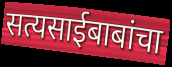
सत्यसाईबाबांचा